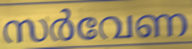
സർവേണ